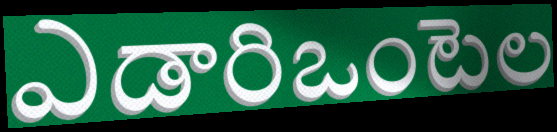
ఎడారిఒంటెల